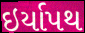
ઇર્યાપથ